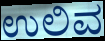
ಉಲಿವ